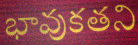
భావుకతని